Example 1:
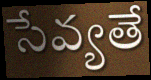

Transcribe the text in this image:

సేవ్యతే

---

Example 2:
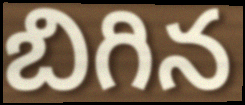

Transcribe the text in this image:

బిగిన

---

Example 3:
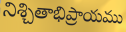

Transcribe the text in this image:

నిశ్చితాభిప్రాయము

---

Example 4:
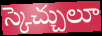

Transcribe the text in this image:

స్కెచ్చులూ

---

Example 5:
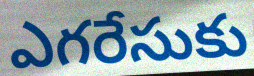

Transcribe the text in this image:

ఎగరేసుకు